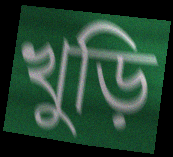
খুড়ি